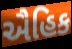
ઐહિક